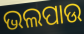
ଭଲପାଉ